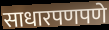
साधारपणपणे